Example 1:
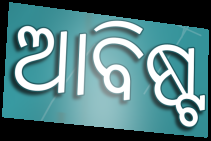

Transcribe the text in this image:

ଆବିଷ୍ଟ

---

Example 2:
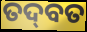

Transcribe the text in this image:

ତଦ୍‌ବତ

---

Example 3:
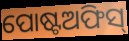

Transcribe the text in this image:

ପୋଷ୍ଟଅଫିସ୍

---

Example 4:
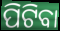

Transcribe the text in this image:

ପିଟିବା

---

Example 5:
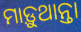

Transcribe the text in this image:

ମାଡ଼ୁଥାନ୍ତା